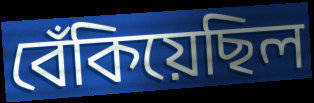
বেঁকিয়েছিল